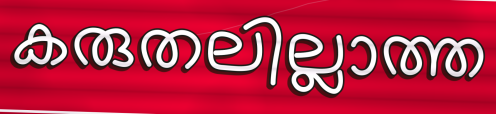
കരുതലില്ലാത്ത